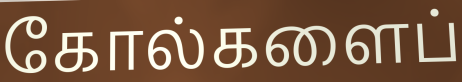
கோல்களைப்